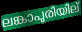
ലങ്കാപുരിയില്